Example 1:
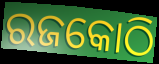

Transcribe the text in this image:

ରଜକୋଠି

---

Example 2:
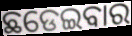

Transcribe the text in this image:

ଛଡେଇବାର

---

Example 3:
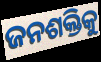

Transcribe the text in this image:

ଜନଶକ୍ତିକୁ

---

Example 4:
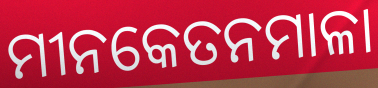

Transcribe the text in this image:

ମୀନକେତନମାଳା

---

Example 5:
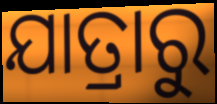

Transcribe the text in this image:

ଯାତ୍ରାରୁ